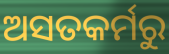
ଅସତକର୍ମରୁ